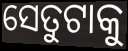
ସେତୁଟାକୁ